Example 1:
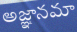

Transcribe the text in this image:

అజ్ఞానమా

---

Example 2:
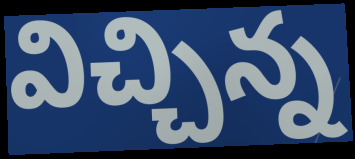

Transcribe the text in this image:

విచ్చిన్న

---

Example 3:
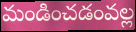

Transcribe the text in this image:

మండించడంవల్ల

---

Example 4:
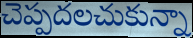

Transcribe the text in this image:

చెప్పదలచుకున్నా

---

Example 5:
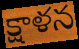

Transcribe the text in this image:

క్షాళన